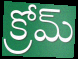
క్రోమ్